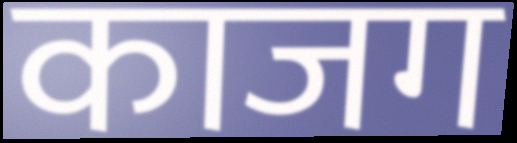
काजग